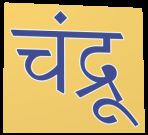
चंद्रू